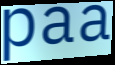
paa